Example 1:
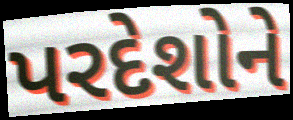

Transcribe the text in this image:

પરદેશોને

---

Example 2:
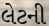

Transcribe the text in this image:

લેટની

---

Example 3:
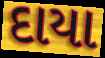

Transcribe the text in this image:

દાયા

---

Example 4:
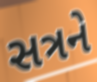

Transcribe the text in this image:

સત્રને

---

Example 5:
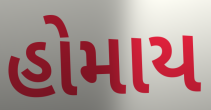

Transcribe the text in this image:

હોમાય